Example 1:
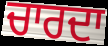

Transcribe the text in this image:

ਚਾਰਦਾ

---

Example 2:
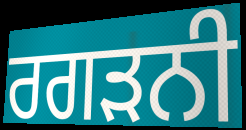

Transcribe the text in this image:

ਰਗੜਨੀ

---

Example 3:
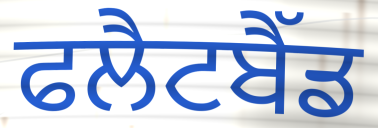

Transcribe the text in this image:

ਫਲੈਟਬੈੱਡ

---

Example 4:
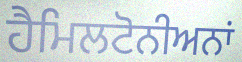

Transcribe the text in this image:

ਹੈਮਿਲਟੋਨੀਅਨਾਂ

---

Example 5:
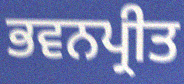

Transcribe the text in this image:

ਭਵਨਪ੍ਰੀਤ